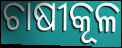
ଚାଷୀକୂଳ